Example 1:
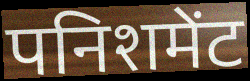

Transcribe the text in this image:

पनिशमेंट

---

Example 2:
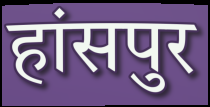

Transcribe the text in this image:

हांसपुर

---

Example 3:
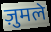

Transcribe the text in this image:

ज़ुमले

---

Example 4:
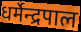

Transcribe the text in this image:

धर्मेन्द्रपाल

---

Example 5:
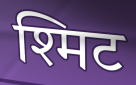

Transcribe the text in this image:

श्मिट